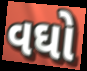
વઘો